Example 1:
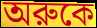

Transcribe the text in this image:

অরুকে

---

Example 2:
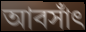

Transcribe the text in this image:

আবসাঁৎ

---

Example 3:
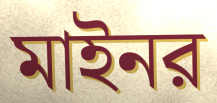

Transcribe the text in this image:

মাইনর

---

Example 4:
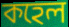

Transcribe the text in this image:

কহেল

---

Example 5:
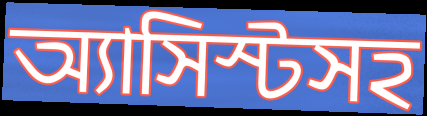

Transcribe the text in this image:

অ্যাসিস্টসহ